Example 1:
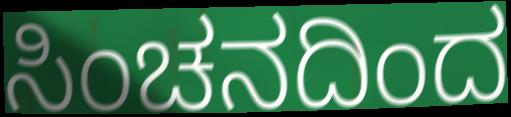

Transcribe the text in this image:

ಸಿಂಚನದಿಂದ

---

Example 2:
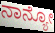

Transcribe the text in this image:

ನಾನ್ಯೋ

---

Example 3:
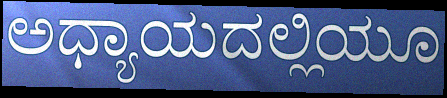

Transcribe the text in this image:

ಅಧ್ಯಾಯದಲ್ಲಿಯೂ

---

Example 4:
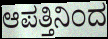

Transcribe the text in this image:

ಆಪತ್ತಿನಿಂದ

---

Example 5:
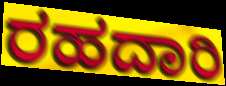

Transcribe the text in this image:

ರಹದಾರಿ